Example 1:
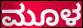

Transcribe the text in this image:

ಮೂಳ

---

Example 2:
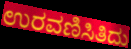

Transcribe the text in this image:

ಉರವಣಿಸಿತಿದು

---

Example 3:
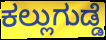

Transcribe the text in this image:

ಕಲ್ಲುಗುಡ್ಡೆ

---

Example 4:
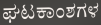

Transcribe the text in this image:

ಘಟಕಾಂಶಗಳ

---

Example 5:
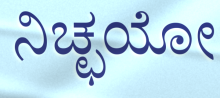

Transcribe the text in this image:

ನಿಚ್ಛಯೋ